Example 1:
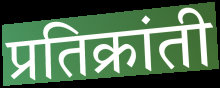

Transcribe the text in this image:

प्रतिक्रांती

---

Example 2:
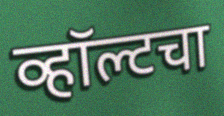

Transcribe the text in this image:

व्हॉल्टचा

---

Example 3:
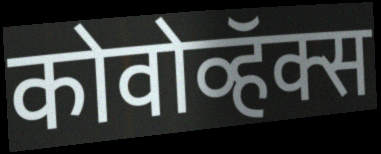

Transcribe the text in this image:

कोवोव्हॅक्स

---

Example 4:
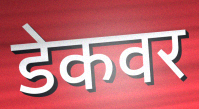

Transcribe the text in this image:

डेकवर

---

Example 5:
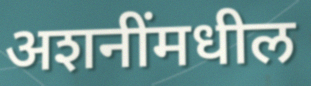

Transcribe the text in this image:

अशनींमधील